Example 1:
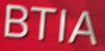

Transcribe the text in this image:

BTIA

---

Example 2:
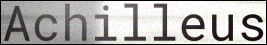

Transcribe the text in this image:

Achilleus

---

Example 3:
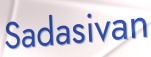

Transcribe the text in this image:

Sadasivan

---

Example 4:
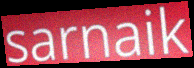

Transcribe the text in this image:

sarnaik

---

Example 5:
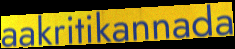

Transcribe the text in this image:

aakritikannada